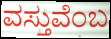
ವಸ್ತುವೆಂಬ